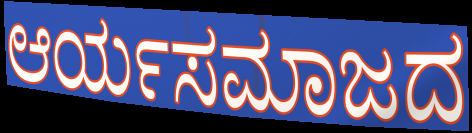
ಆರ್ಯಸಮಾಜದ